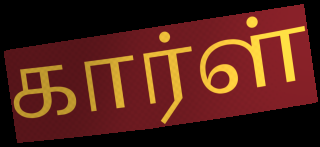
கார்ள்